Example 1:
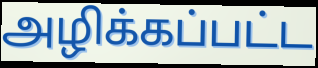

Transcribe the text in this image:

அழிக்கப்பட்ட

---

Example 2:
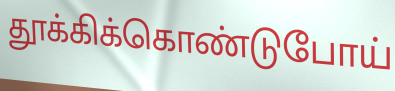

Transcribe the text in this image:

தூக்கிக்கொண்டுபோய்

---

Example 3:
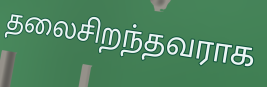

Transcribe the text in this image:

தலைசிறந்தவராக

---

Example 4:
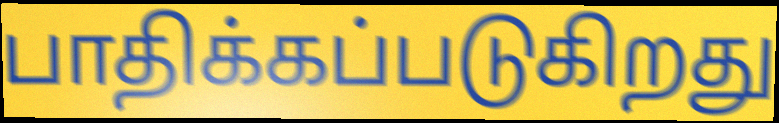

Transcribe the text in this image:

பாதிக்கப்படுகிறது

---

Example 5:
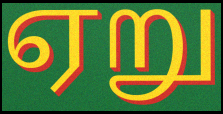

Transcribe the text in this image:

ஏறு